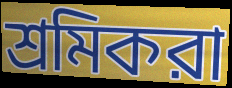
শ্রমিকরা